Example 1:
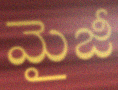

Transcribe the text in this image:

మైజీ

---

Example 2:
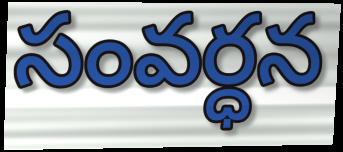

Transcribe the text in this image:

సంవర్ధన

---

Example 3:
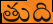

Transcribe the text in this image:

తుది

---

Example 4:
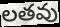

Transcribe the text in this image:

లతవు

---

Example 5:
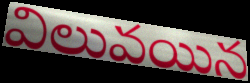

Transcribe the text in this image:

విలువయిన